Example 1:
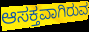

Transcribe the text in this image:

ಆಸಕ್ತವಾಗಿರುವ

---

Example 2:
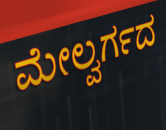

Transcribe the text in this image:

ಮೇಲ್ವರ್ಗದ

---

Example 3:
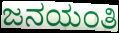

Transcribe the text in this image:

ಜನಯಂತಿ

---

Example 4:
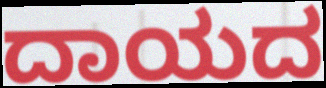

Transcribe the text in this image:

ದಾಯದ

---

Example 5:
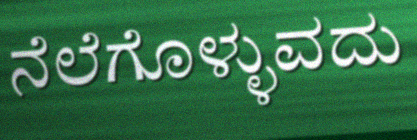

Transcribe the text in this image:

ನೆಲೆಗೊಳ್ಳುವದು